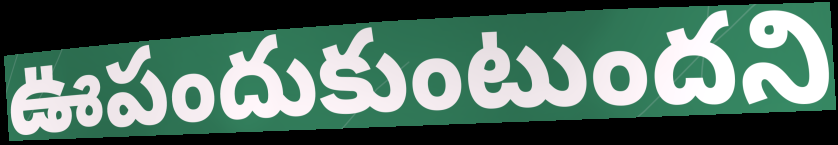
ఊపందుకుంటుందని